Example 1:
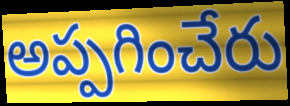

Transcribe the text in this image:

అప్పగించేరు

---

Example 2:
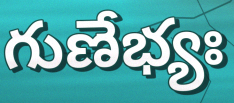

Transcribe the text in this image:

గుణేభ్యః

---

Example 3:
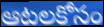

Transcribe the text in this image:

ఆటలకోసం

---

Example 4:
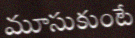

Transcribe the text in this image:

మూసుకుంటే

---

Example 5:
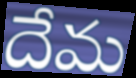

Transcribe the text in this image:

దేమ